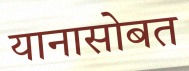
यानासोबत